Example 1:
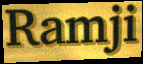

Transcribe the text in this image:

Ramji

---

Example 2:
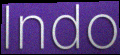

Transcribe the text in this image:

Indo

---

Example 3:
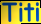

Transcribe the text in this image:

Titi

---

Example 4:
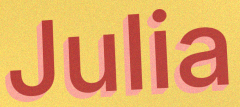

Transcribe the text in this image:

Julia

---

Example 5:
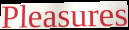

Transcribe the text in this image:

Pleasures